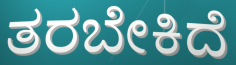
ತರಬೇಕಿದೆ